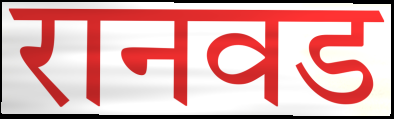
रानवड